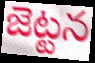
జెట్టన